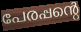
പേരപ്പന്റെ